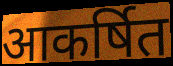
आकर्षित